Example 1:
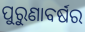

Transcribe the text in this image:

ପୁରୁଣାବର୍ଷର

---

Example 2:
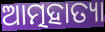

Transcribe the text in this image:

ଆତ୍ମହାତ୍ୟା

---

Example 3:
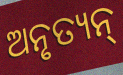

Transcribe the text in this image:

ଅନୃତ୍ୟନ୍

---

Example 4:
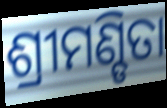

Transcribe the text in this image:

ଶ୍ରୀମଣ୍ଡିତା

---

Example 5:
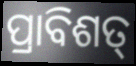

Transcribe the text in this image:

ପ୍ରାବିଶତ୍